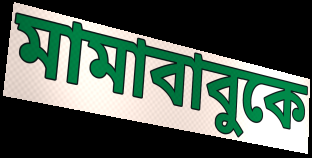
মামাবাবুকে